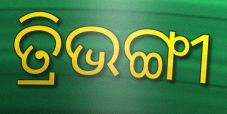
ତ୍ରିଭଙ୍ଗୀ